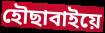
হৌছাবাইয়ে